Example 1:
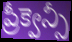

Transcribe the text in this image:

ప్రీక్వెన్సీ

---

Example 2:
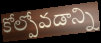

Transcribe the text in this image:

కోల్పోవడాన్ని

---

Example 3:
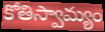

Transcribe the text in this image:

కోతిస్వామ్యం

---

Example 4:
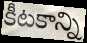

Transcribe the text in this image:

కీటకాన్ని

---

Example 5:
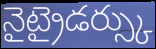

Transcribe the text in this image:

నైట్రైడర్స్కు